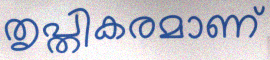
തൃപ്തികരമാണ്